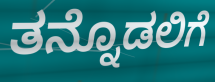
ತನ್ನೊಡಲಿಗೆ